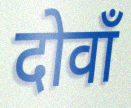
दोवाँ